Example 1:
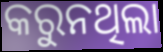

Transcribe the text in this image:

କରୁନଥିଲା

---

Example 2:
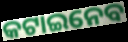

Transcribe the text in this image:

କଟାଇନେବ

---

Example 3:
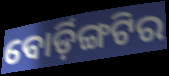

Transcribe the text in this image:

ବୋର୍ଡ଼ିଙ୍ଗଟିର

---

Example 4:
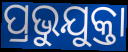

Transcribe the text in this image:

ପ୍ରଭୁଯୁକ୍ତା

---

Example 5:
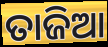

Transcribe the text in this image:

ତାଜିଆ